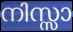
നിസ്സാ